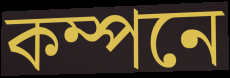
কম্পনে